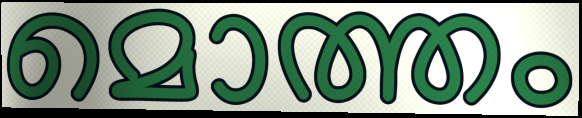
മൊത്തം